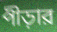
পীড়ার